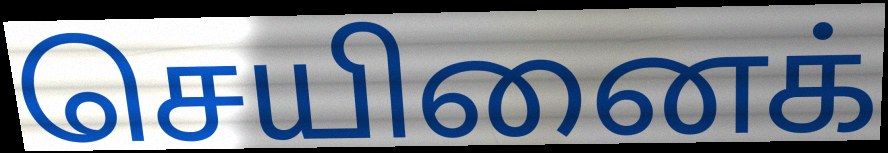
செயினைக்